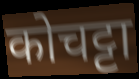
कोचट्टा